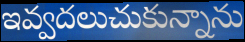
ఇవ్వదలుచుకున్నాను